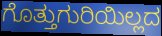
ಗೊತ್ತುಗುರಿಯಿಲ್ಲದ